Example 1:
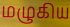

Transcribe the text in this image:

மழுகிய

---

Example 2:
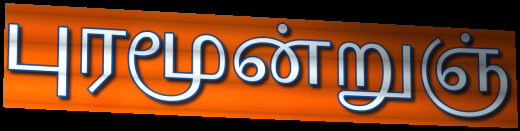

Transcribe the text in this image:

புரமூன்றுஞ்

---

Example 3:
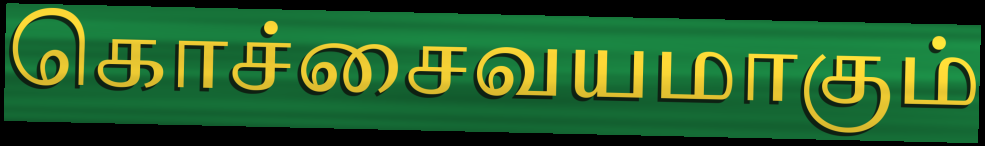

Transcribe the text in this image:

கொச்சைவயமாகும்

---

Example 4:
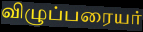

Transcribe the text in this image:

விழுப்பரையர்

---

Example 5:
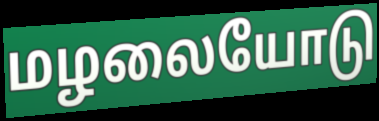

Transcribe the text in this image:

மழலையோடு